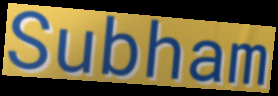
Subham